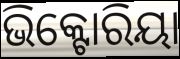
ଭିକ୍ଟୋରିୟା